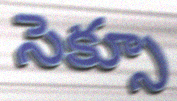
సెక్సూ